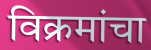
विक्रमांचा